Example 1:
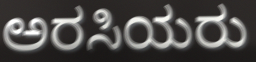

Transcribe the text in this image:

ಅರಸಿಯರು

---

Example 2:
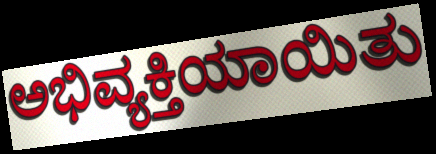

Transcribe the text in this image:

ಅಭಿವ್ಯಕ್ತಿಯಾಯಿತು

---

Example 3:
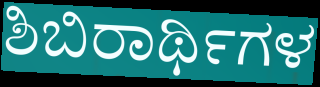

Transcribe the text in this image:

ಶಿಬಿರಾರ್ಥಿಗಳ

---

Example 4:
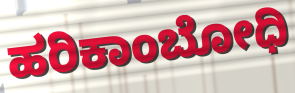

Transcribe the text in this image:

ಹರಿಕಾಂಬೋಧಿ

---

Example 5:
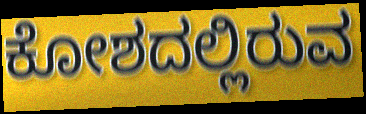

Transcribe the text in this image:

ಕೋಶದಲ್ಲಿರುವ